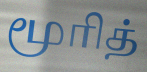
மூரித்